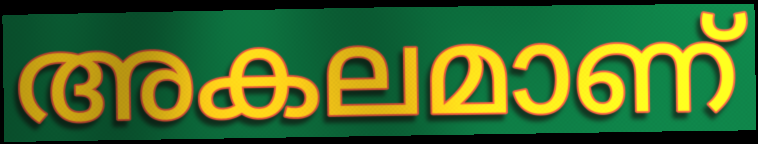
അകലമാണ്